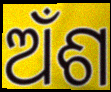
ଅଁଶ